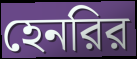
হেনরির